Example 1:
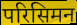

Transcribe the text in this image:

परिसिमन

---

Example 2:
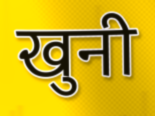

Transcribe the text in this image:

खुनी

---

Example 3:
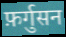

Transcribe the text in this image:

फ़र्गुसन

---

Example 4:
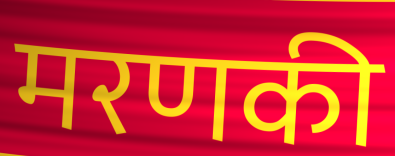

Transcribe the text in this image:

मरणकी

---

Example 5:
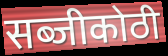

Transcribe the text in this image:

सब्जीकोठी